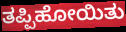
ತಪ್ಪಿಹೋಯಿತು